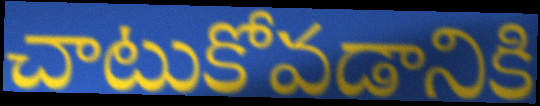
చాటుకోవడానికి